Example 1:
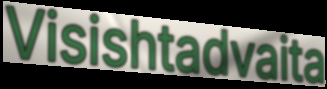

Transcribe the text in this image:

Visishtadvaita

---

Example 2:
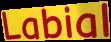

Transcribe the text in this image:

Labial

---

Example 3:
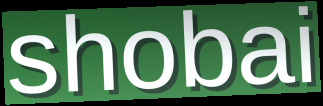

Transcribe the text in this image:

shobai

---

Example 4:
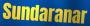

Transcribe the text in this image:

Sundaranar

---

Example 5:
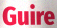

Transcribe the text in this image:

Guire